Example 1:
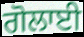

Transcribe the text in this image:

ਗੋਲਾਈ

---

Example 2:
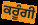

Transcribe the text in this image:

ਕਰੂੰਗੀ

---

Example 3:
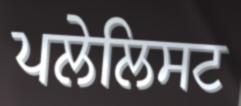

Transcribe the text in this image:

ਪਲੇਲਿਸਟ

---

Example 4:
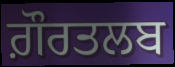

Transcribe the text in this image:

ਗ਼ੌਰਤਲਬ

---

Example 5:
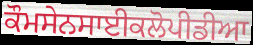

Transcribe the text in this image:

ਕੌਮਸੇਨਸਾਈਕਲੋਪੀਡੀਆ